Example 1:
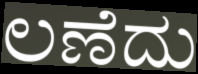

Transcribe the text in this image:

ಲಣೆದು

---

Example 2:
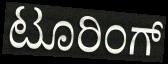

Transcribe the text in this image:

ಟೂರಿಂಗ್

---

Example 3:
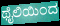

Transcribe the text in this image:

ಥೈಲಿಯಿಂದ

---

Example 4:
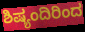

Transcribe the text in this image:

ಶಿಷ್ಯಂದಿರಿಂದ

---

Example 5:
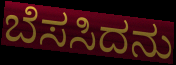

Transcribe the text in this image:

ಬೆಸಸಿದನು